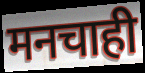
मनचाही